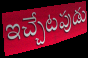
ఇచ్చేటపుడు